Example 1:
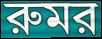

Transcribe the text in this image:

রুমর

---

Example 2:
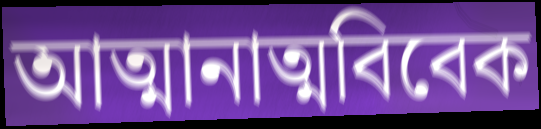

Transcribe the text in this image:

আত্মানাত্মবিবেক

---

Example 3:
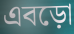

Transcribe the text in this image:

এবড়ো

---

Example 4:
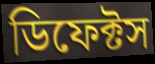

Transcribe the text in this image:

ডিফেক্টস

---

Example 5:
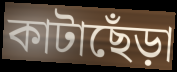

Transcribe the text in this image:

কাটাছেঁড়া